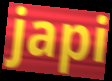
japi